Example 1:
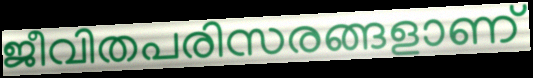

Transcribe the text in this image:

ജീവിതപരിസരങ്ങളാണ്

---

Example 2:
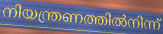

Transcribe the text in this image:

നിയന്ത്രണത്തിൽനിന്ന്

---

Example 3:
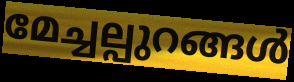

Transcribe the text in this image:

മേച്ചല്പുറങ്ങൾ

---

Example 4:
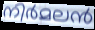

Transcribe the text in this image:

നിർമലൻ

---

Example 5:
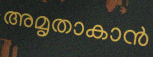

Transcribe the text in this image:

അമൃതാകാൻ